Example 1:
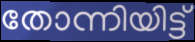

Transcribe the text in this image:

തോന്നിയിട്ട്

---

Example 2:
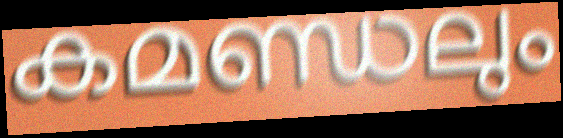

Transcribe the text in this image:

കമണ്ഡലും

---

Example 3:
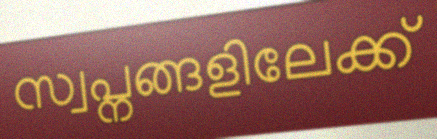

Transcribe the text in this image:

സ്വപ്നങ്ങളിലേക്ക്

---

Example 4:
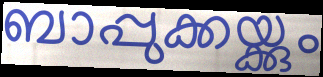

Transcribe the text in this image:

ബാപ്പുക്കയ്ക്കും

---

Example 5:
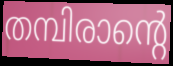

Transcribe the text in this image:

തമ്പിരാന്റെ